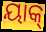
ୟାକ୍